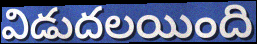
విడుదలయింది